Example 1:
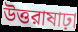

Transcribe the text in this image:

উত্তরাষাঢ়া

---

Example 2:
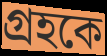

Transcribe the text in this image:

গ্রহকে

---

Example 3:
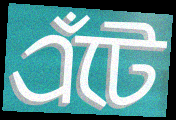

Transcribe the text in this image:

এঁটে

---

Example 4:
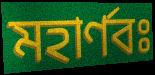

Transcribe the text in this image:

মহার্ণবঃ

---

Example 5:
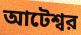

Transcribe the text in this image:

আটেশ্বর